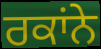
ਰਕਾਂਨੇ